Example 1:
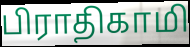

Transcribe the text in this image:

பிராதிகாமி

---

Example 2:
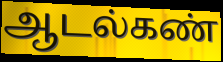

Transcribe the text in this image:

ஆடல்கண்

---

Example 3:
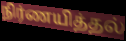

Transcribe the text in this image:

நிர்ணயித்தல்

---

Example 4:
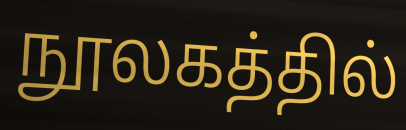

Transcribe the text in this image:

நூலகத்தில்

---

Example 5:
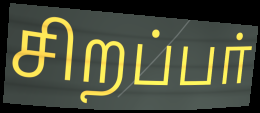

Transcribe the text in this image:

சிறப்பர்